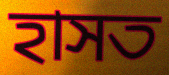
হাসত